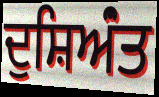
ਦੁਸ਼ਿਅਂੰਤ